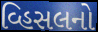
વ્હિસલનો